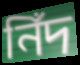
নিঁদ